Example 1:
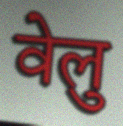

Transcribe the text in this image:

वेलु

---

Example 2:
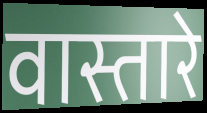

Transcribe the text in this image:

वास्तारे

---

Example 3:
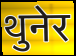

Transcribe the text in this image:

थुनेर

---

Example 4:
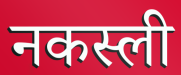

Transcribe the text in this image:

नकस्ली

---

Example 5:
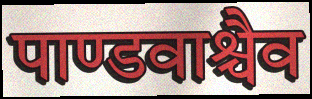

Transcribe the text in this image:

पाण्डवाश्चैव